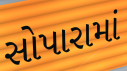
સોપારામાં